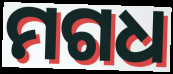
ମଗଧ